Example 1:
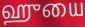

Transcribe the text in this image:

ஹுயை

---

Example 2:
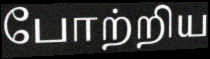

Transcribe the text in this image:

போற்றிய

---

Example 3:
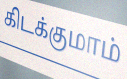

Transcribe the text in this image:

கிடக்குமாம்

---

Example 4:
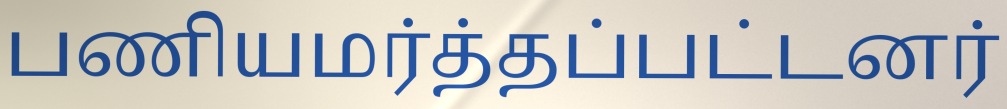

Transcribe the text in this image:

பணியமர்த்தப்பட்டனர்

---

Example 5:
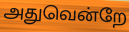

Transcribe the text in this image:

அதுவென்றே